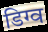
डिग्व